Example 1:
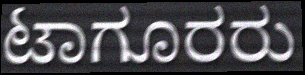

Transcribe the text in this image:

ಟಾಗೂರರು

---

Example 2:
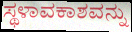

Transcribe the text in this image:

ಸ್ಥಳಾವಕಾಶವನ್ನು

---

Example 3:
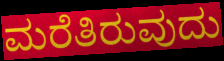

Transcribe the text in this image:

ಮರೆತಿರುವುದು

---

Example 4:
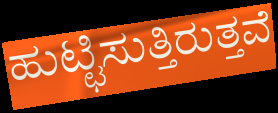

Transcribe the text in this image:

ಹುಟ್ಟಿಸುತ್ತಿರುತ್ತವೆ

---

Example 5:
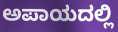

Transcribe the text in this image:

ಅಪಾಯದಲ್ಲಿ